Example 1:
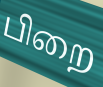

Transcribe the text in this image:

பிறை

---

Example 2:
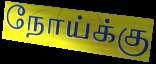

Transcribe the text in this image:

நோய்க்கு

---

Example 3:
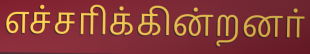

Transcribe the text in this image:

எச்சரிக்கின்றனர்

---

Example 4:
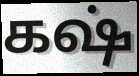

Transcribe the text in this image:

கஷ்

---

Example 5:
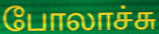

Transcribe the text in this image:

போலாச்சு